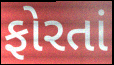
ફોરતાં